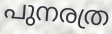
പുനരത്ര